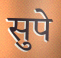
सुपे